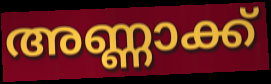
അണ്ണാക്ക്